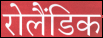
रोलैंडिक